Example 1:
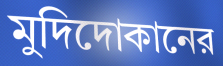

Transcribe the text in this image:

মুদিদোকানের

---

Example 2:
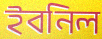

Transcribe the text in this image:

ইবনিল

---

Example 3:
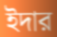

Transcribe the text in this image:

ইদার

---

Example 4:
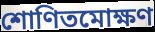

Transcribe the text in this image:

শোণিতমোক্ষণ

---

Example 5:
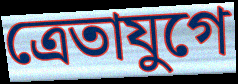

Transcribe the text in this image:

ত্রেতাযুগে